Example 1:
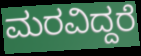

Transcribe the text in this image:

ಮರವಿದ್ದರೆ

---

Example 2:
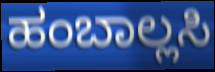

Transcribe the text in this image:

ಹಂಬಾಲ್ಲಸಿ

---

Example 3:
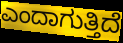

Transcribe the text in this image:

ಎಂದಾಗುತ್ತಿದೆ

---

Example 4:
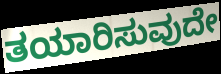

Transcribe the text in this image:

ತಯಾರಿಸುವುದೇ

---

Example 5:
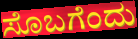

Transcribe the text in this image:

ಸೊಬಗೆಂದು